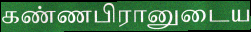
கண்ணபிரானுடைய